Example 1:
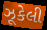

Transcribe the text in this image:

ઝૂકેલી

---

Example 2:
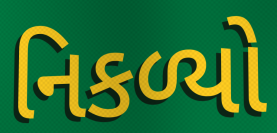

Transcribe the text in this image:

નિકળ્યો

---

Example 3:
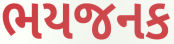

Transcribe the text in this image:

ભયજનક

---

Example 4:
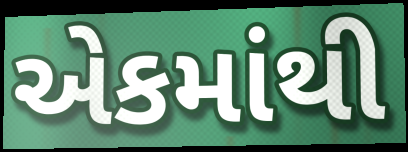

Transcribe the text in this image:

એકમાંથી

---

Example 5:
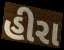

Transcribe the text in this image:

હીરા